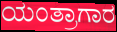
ಯಂತ್ರಾಗಾರ